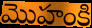
మొహంకి